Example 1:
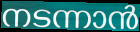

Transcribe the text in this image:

നടന്നാൻ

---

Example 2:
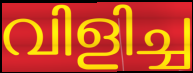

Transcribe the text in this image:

വിളിച്ച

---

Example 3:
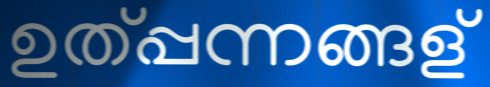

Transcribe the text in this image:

ഉത്പ്പന്നങ്ങള്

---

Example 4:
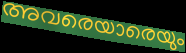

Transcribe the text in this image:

അവരെയാരെയും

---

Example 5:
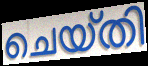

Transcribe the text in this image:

ചെയ്‌തി